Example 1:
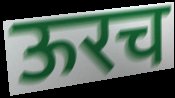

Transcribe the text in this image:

ऊरच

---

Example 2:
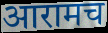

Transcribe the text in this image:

आरामच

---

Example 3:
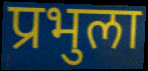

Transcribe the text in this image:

प्रभुला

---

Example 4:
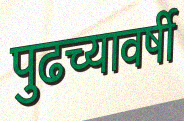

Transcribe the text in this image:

पुढच्यावर्षी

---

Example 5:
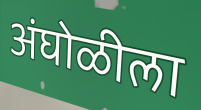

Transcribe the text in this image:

अंघोळीला